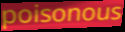
poisonous